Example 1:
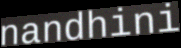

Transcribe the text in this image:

nandhini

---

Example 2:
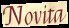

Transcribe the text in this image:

Novita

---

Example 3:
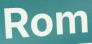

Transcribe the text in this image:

Rom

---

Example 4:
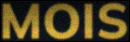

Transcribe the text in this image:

MOIS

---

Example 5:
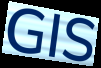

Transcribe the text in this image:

GIS